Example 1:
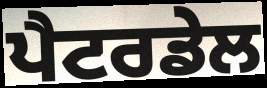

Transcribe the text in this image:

ਪੈਟਰਡੇਲ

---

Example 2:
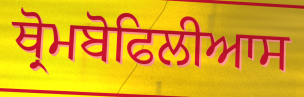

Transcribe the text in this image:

ਥ੍ਰੋਮਬੋਫਿਲੀਆਸ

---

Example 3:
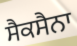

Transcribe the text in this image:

ਸੈਕਸੈਨਾ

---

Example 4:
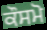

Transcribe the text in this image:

ਕੌਸਮੋ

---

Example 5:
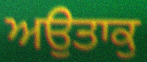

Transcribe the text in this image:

ਅਉਤਾਕੁ